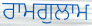
ਰਾਮਗੁਲਾਮ